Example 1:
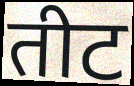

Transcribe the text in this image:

तीट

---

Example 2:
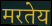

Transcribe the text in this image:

मरतेय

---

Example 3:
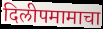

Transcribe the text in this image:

दिलीपमामाचा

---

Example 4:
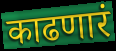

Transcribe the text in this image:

काढणारं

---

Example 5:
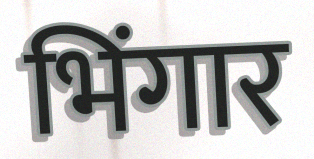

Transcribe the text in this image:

भिंगार